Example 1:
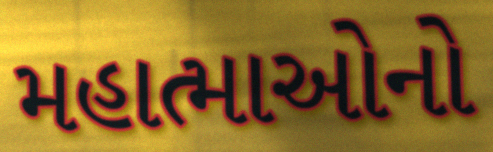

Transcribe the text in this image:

મહાત્માઓનો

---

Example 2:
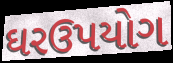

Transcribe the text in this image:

ઘરઉપયોગ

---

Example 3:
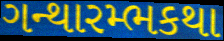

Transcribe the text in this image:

ગન્થારમ્ભકથા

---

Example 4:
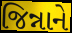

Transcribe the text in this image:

જિન્નાને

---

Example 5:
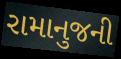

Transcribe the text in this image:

રામાનુજની